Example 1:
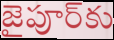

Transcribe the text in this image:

జైపూర్‌కు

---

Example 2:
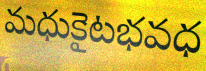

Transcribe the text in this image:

మధుకైటభవధ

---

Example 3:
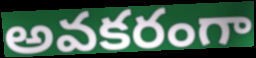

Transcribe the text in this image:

అవకరంగా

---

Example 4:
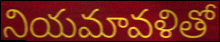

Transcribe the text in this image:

నియమావళితో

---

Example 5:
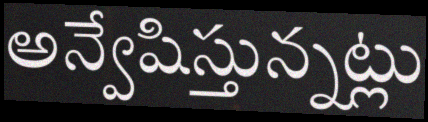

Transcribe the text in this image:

అన్వేషిస్తున్నట్లు